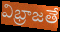
విభ్రాజతే